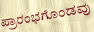
ಪ್ರಾರಂಭಗೊಂಡವು